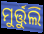
ମୁର୍ତ୍ତୁଲି